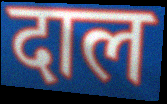
दाल